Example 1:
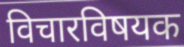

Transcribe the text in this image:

विचारविषयक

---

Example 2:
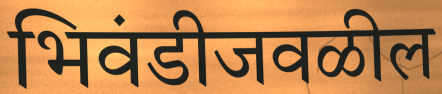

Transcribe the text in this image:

भिवंडीजवळील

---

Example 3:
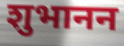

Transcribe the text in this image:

शुभानन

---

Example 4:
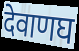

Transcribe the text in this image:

देवाणघ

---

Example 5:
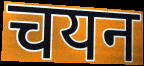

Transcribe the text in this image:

चयन